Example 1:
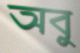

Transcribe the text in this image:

অবু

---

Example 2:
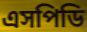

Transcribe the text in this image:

এসপিডি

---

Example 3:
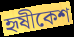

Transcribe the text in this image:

হৃষীকেশ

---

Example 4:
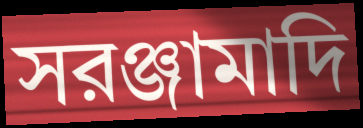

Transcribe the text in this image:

সরঞ্জামাদি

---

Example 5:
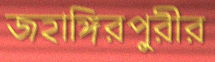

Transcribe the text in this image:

জহাঙ্গিরপুরীর